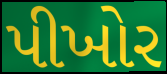
પીખોર